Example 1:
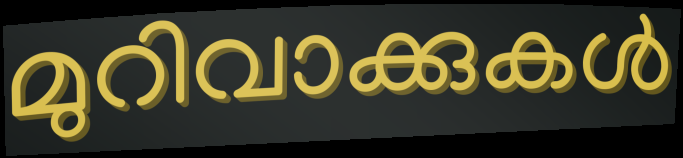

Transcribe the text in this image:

മുറിവാക്കുകൾ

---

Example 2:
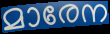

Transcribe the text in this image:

മാരേന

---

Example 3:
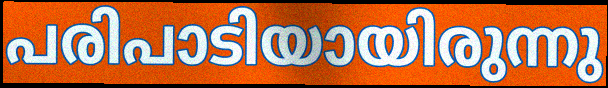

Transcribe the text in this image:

പരിപാടിയായിരുന്നു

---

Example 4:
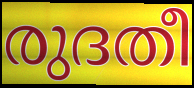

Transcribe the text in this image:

രുദതീ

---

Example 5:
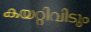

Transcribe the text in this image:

കയറ്റിവിടും